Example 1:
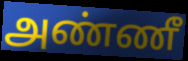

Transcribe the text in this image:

அண்ணீ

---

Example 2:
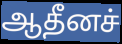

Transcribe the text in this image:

ஆதீனச்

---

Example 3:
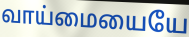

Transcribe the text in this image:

வாய்மையையே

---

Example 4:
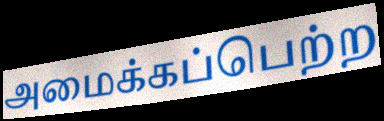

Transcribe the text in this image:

அமைக்கப்பெற்ற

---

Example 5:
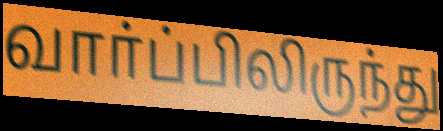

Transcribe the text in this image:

வார்ப்பிலிருந்து